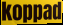
koppad